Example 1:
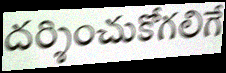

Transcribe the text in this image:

దర్శించుకోగలిగే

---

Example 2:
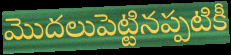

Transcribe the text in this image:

మొదలుపెట్టినప్పటికీ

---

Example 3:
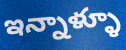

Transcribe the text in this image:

ఇన్నాళ్ళూ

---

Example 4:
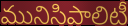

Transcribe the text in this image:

మునిసిపాలిటీ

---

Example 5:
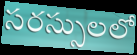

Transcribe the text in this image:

సరస్సులలో